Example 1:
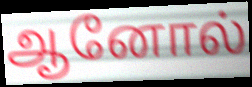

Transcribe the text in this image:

ஆனோல்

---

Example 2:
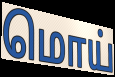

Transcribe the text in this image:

மொய்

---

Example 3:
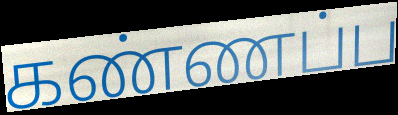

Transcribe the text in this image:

கண்ணப்ப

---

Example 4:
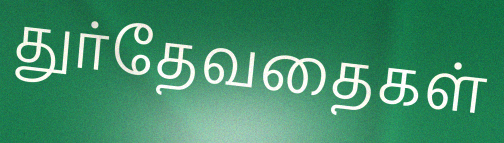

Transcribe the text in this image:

துர்தேவதைகள்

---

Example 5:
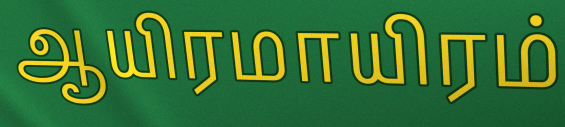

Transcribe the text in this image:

ஆயிரமாயிரம்